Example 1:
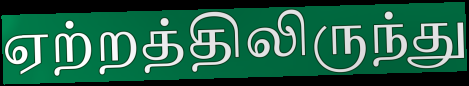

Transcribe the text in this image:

ஏற்றத்திலிருந்து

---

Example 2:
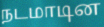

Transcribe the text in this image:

நடமாடின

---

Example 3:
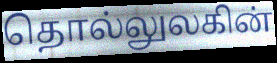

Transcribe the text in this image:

தொல்லுலகின்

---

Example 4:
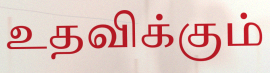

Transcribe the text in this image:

உதவிக்கும்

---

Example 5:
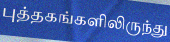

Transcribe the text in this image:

புத்தகங்களிலிருந்து